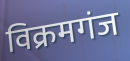
विक्रमगंज